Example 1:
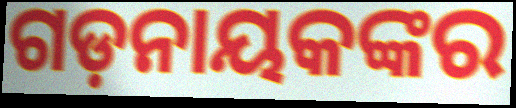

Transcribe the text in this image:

ଗଡ଼ନାୟକଙ୍କର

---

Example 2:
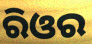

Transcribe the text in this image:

ରିଓର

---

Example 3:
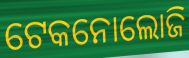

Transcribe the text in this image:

ଟେକନୋଲୋଜି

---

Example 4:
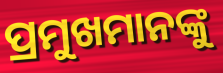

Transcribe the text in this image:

ପ୍ରମୁଖମାନଙ୍କୁ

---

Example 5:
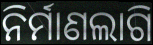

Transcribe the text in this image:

ନିର୍ମାଣଲାଗି